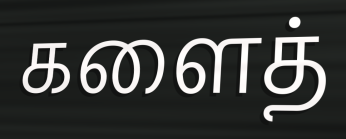
களைத்